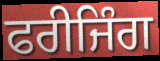
ਫਰੀਜਿੰਗ